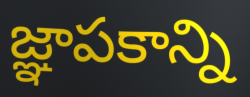
జ్ఞాపకాన్ని